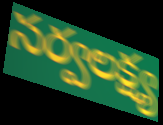
సర్వలక్ష్య